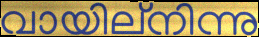
വായില്നിന്നു